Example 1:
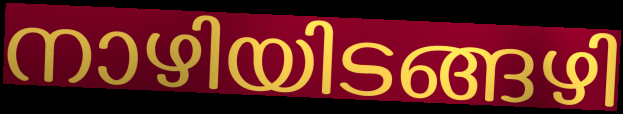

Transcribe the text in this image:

നാഴിയിടങ്ങഴി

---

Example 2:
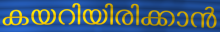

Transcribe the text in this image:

കയറിയിരിക്കാൻ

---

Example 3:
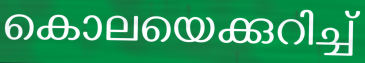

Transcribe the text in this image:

കൊലയെക്കുറിച്ച്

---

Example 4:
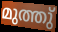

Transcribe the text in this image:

മുത്തു്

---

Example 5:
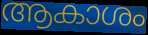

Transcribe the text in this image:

ആകാശം